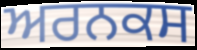
ਅਰਨਕਸ